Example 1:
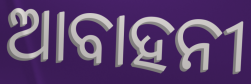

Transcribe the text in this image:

ଆବାହନୀ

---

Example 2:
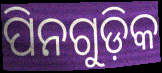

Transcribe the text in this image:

ପିନଗୁଡ଼ିକ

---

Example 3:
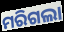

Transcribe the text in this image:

ମରିଗଲା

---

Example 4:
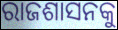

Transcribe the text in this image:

ରାଜଶାସନକୁ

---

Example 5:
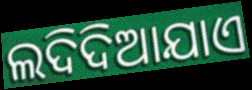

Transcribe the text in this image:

ଲଦିଦିଆଯାଏ